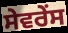
ਸੇਵਰੇਂਸ